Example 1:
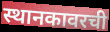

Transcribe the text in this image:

स्थानकावरची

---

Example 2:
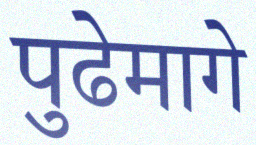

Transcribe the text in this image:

पुढेमागे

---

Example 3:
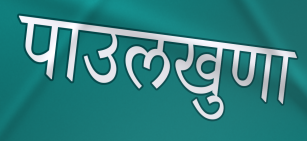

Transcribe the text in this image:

पाउलखुणा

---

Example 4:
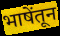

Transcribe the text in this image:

भाषेंतून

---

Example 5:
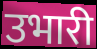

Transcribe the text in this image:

उभारी